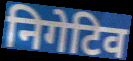
निगेटिव